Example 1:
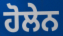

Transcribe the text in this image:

ਹੋਲੇਨ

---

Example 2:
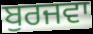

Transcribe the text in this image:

ਬੁਰਜਵਾ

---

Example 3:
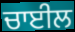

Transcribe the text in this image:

ਚਾਈਲ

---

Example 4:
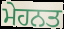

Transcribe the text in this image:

ਮੇਹਨਤ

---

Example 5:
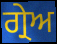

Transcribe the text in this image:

ਗ੍ਰੇਅ